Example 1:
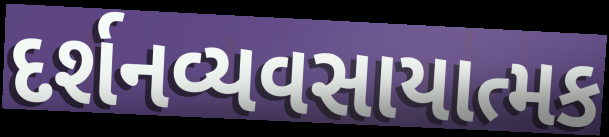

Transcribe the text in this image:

દર્શનવ્યવસાયાત્મક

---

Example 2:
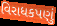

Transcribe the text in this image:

વિરાધકપણું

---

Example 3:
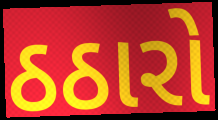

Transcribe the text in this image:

ઠઠારો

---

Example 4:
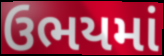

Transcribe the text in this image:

ઉભયમાં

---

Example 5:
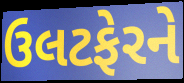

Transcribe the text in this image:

ઉલટફેરને